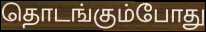
தொடங்கும்போது